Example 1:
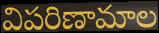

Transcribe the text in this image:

విపరిణామాల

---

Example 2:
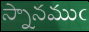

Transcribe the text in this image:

స్నానముఁ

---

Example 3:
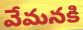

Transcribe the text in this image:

వేమనకి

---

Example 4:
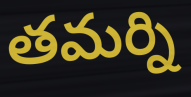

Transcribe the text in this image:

తమర్ని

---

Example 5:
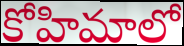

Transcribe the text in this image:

కోహిమాలో